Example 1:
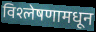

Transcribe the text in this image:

विश्लेषणामधून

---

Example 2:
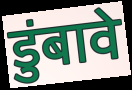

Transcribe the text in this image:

डुंबावे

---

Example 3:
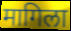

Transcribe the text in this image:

मागिला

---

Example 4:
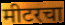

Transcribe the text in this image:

मीटरचा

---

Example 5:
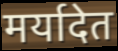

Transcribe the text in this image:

मर्यादेत